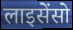
लाइसेंसो